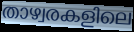
താഴ്വരകളിലെ